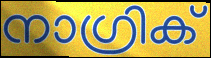
നാഗ്രിക്